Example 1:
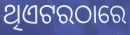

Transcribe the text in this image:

ଥିଏଟରଠାରେ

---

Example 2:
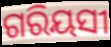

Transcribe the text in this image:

ଗରିୟସୀ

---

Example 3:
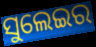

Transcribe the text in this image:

ସୁଲେଇର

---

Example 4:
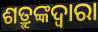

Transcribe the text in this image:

ଶତ୍ରୁଙ୍କଦ୍ୱାରା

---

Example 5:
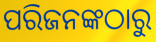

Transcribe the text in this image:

ପରିଜନଙ୍କଠାରୁ